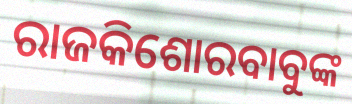
ରାଜକିଶୋରବାବୁଙ୍କ